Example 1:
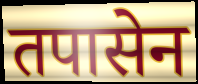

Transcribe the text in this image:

तपासेन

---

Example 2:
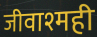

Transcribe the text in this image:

जीवाश्मही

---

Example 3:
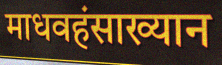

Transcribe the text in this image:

माधवहंसाख्यान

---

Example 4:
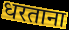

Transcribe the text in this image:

धरताना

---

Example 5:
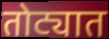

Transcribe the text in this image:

तोट्यात